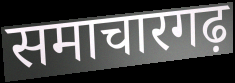
समाचारगढ़